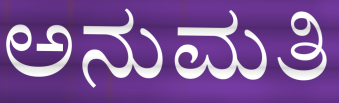
ಅನುಮತಿ